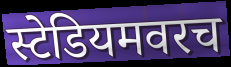
स्टेडियमवरच